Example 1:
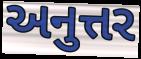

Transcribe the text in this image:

અનુત્તર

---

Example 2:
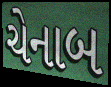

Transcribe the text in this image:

ચેનાબ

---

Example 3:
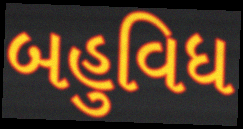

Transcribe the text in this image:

બહુવિધ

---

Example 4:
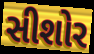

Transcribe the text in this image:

સીશોર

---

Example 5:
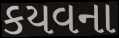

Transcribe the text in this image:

કયવના